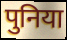
पुनिया